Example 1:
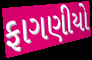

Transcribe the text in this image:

ફાગણીયો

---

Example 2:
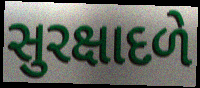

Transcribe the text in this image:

સુરક્ષાદળે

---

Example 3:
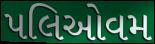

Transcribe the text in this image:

પલિઓવમ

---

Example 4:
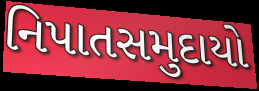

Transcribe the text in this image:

નિપાતસમુદાયો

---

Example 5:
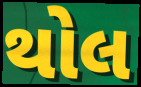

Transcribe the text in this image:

થોલ